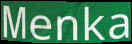
Menka